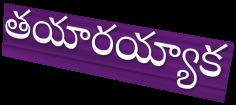
తయారయ్యాక